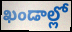
ఖండాల్లో